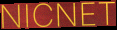
NICNET